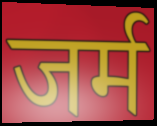
जर्म